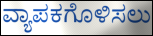
ವ್ಯಾಪಕಗೊಳಿಸಲು